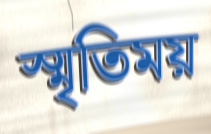
স্মৃতিময়